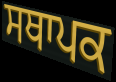
ਸਥਾਪਕ